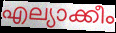
എല്യാക്കീം